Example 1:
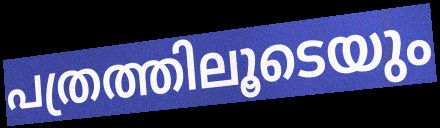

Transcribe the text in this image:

പത്രത്തിലൂടെയും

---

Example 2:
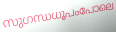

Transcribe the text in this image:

സുഗന്ധധൂപംപോലെ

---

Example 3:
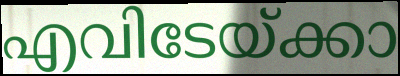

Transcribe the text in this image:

എവിടേയ്ക്കാ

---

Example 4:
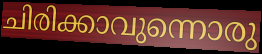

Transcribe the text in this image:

ചിരിക്കാവുന്നൊരു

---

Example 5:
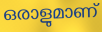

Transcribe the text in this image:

ഒരാളുമാണ്